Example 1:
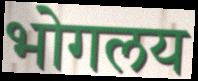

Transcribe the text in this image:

भोगलय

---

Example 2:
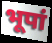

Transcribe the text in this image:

भूपां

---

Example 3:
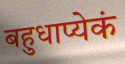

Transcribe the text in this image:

बहुधाप्येकं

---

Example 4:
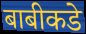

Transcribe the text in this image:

बाबीकडे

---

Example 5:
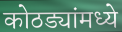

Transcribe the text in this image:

कोठड्यांमध्ये